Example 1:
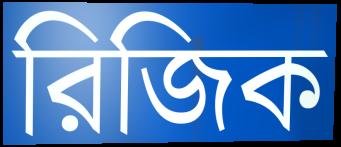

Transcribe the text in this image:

রিজিক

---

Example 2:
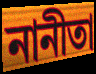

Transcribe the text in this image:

নানীতা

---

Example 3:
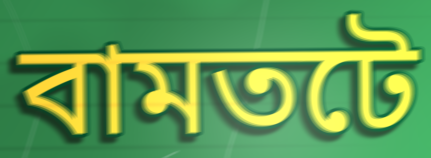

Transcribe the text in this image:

বামতটে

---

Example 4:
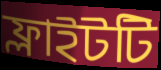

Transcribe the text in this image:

ফ্লাইটটি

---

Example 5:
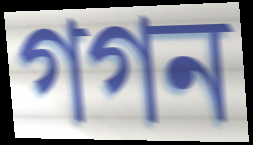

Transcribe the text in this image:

গগন